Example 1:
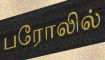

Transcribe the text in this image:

பரோலில்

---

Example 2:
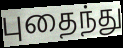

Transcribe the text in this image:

புதைந்து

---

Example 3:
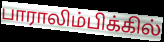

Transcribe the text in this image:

பாராலிம்பிக்கில்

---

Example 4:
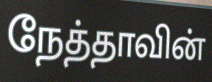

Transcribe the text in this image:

நேத்தாவின்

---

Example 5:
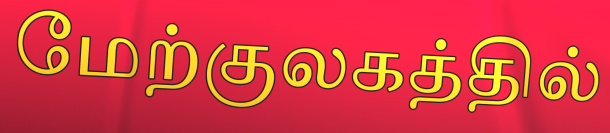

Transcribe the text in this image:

மேற்குலகத்தில்